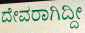
ದೇವರಾಗಿದ್ದೀ